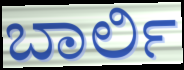
ಬಾರ್ಲಿ